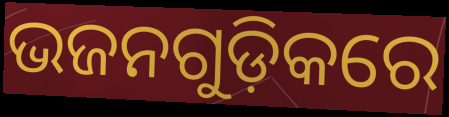
ଭଜନଗୁଡ଼ିକରେ